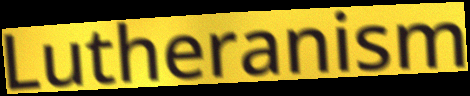
Lutheranism